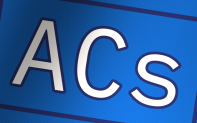
ACs